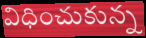
విధించుకున్న